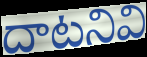
దాటనివి